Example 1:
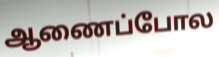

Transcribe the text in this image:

ஆணைப்போல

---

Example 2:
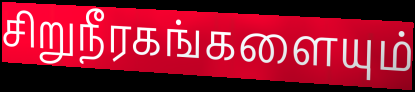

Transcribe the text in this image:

சிறுநீரகங்களையும்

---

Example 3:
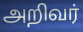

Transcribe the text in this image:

அறிவர்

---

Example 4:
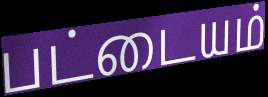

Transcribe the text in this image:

பட்டையம்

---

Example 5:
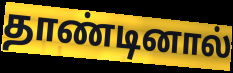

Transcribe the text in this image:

தாண்டினால்